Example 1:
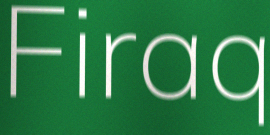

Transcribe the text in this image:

Firaq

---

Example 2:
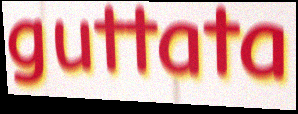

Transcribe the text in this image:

guttata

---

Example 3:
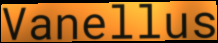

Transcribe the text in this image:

Vanellus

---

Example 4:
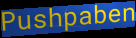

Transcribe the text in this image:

Pushpaben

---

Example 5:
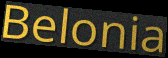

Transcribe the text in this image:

Belonia